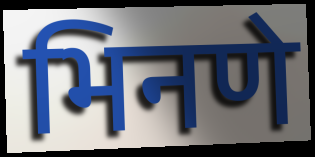
भिनणे